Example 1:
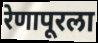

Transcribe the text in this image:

रेणापूरला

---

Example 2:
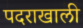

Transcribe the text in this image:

पदराखाली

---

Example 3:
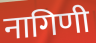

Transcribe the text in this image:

नागिणी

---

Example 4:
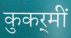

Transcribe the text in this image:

कुकर्मीं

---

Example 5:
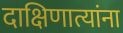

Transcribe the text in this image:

दाक्षिणात्यांना